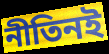
নীতিনই